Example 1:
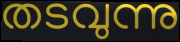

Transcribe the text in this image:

തടവുന്നു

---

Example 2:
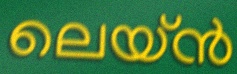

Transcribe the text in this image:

ലെയ്ൻ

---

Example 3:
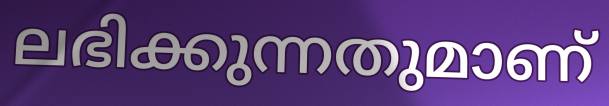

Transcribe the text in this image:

ലഭിക്കുന്നതുമാണ്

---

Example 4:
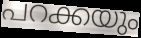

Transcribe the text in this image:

പറക്കയും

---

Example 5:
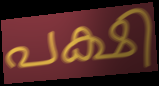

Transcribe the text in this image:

പക്ഷി